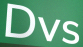
Dvs